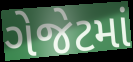
ગેજેટમાં